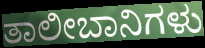
ತಾಲೀಬಾನಿಗಳು